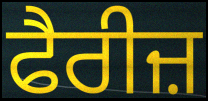
ਫੈਰੀਜ਼